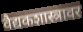
वैद्यकशास्त्रावर